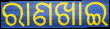
ରାଣଖାଇ